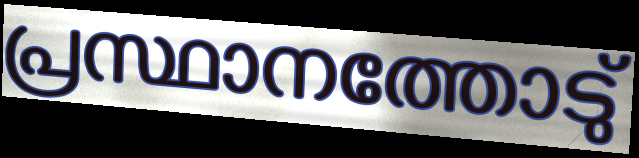
പ്രസ്ഥാനത്തോടു്